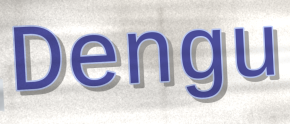
Dengu